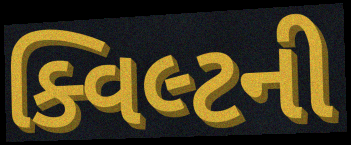
ક્વિલ્ટની